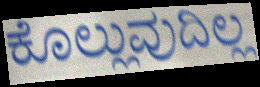
ಕೊಲ್ಲುವುದಿಲ್ಲ